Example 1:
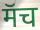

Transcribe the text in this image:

मॅच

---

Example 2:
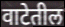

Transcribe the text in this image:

वाटेतील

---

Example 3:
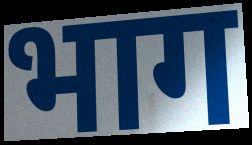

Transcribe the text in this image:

भाग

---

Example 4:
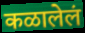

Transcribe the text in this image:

कळालेलं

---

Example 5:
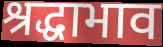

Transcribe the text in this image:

श्रद्धाभाव